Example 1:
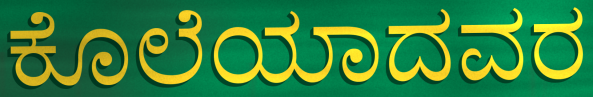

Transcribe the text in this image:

ಕೊಲೆಯಾದವರ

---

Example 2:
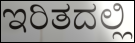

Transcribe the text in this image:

ಇರಿತದಲ್ಲಿ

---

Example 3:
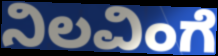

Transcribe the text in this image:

ನಿಲವಿಂಗೆ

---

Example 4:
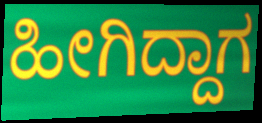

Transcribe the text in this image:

ಹೀಗಿದ್ದಾಗ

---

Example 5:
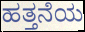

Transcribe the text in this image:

ಹತ್ತನೆಯ